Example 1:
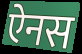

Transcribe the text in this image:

ऐनस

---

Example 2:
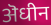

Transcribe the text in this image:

ऄधीन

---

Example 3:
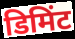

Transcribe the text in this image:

डिमिंट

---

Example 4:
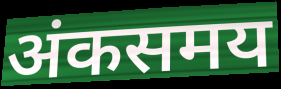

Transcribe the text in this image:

अंकसमय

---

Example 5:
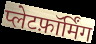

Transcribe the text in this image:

प्लेटफ़ॉर्मिंग